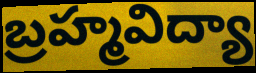
బ్రహ్మవిద్యా